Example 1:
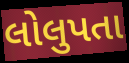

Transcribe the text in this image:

લોલુપતા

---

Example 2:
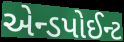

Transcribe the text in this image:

એન્ડપોઈન્ટ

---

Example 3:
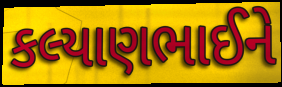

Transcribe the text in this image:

કલ્યાણભાઈને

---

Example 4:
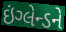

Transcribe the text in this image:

ઇંગ્લેન્ડને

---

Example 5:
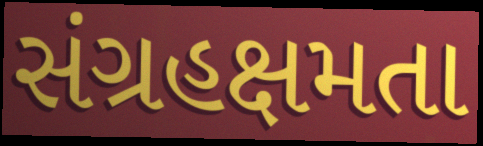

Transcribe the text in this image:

સંગ્રહક્ષમતા